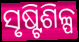
ସୃଷ୍ଟିଶିଳ୍ପ